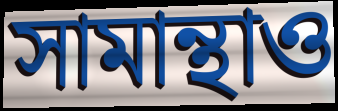
সামান্থাও